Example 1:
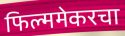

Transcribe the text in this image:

फिल्ममेकरचा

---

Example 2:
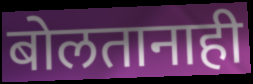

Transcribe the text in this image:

बोलतानाही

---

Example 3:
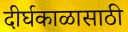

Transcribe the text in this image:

दीर्घकाळासाठी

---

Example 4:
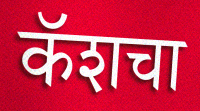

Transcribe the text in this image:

कॅशचा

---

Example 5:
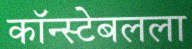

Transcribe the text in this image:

कॉन्स्टेबलला